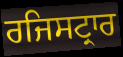
ਰਜਿਸਟ੍ਰਾਰ